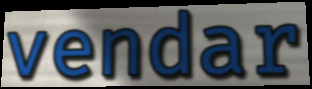
vendar